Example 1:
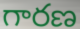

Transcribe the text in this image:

గారణ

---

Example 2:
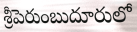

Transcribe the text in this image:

శ్రీపెరుంబుదూరులో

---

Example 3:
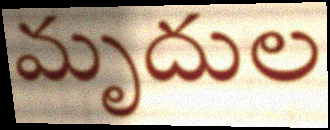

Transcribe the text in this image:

మృదుల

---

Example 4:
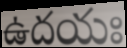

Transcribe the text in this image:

ఉదయః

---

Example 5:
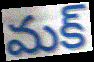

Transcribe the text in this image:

మక్